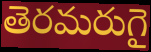
తెరమరుగై